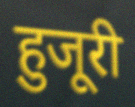
हुजूरी